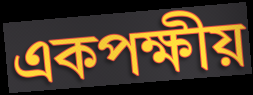
একপক্ষীয়